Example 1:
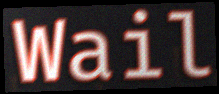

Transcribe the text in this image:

Wail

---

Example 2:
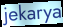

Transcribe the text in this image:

jekarya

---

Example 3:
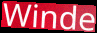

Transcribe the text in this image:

Winde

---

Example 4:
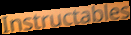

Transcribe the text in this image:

Instructables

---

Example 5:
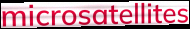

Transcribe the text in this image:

microsatellites